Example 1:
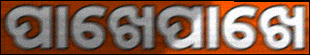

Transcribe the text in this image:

ପାଖେପାଖେ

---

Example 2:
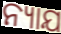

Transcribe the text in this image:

ନ୍ୟାଯ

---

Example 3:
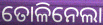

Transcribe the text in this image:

ତୋଳିନେଲା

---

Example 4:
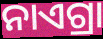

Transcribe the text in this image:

ନାଏଗ୍ରା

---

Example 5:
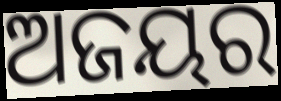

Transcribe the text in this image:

ଅଜୟର